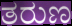
ತರುಣ